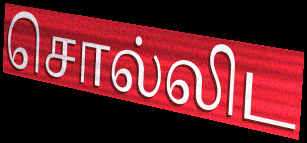
சொல்லிட